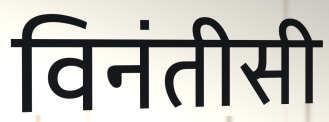
विनंतीसी